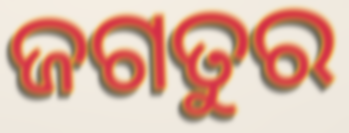
ଜଗତୁର